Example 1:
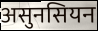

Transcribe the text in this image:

असुनसियन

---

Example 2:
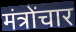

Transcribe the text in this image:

मंत्रोंचार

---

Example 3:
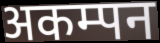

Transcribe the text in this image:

अकम्पन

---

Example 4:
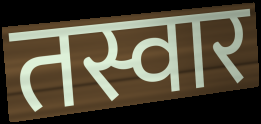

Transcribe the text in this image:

तस्वार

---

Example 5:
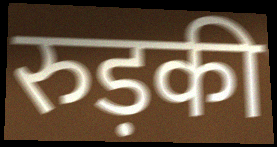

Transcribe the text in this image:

रुड़की